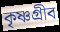
কৃষ্ণগ্রীব